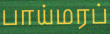
பாய்மரப்